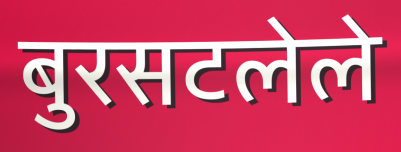
बुरसटलेले